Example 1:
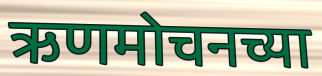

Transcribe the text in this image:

ऋणमोचनच्या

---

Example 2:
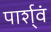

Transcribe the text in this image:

पार्श्वं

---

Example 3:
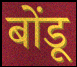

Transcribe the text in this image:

बोंडू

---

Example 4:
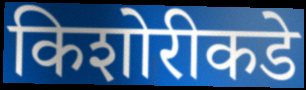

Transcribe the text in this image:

किशोरीकडे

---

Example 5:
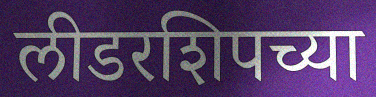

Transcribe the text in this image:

लीडरशिपच्या